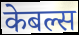
केबल्स